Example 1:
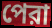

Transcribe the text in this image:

পেরা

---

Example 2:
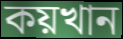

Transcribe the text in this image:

কয়খান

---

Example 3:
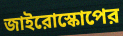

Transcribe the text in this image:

জাইরোস্কোপের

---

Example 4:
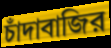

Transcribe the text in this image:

চাঁদাবাজির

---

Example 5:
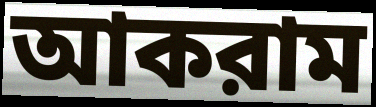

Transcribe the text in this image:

আকরাম